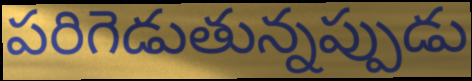
పరిగెడుతున్నప్పుడు